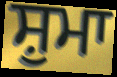
ਸ਼ੁਮਾ